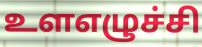
உளஎழுச்சி